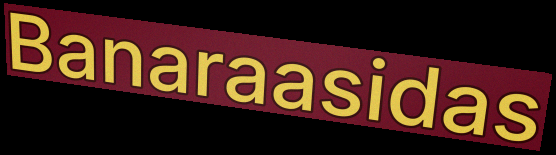
Banaraasidas